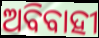
ଅବିବାହୀ